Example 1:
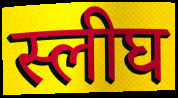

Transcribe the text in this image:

स्लीघ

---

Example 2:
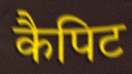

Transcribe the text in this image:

कैपिट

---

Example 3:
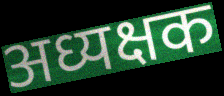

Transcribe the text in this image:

अध्यक्षक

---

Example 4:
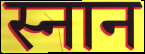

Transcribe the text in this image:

स्‍नान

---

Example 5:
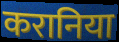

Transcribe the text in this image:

करानिया